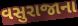
વસુરાજાના